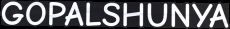
GOPALSHUNYA